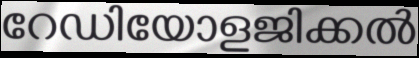
റേഡിയോളജിക്കൽ